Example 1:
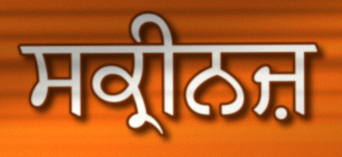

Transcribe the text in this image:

ਸਕ੍ਰੀਨਜ਼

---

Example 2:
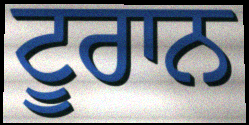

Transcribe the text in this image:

ਟੂਰਾਨ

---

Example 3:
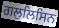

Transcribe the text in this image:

ਗਲੁਲਿਸਿਨ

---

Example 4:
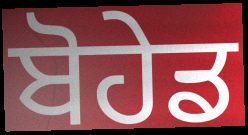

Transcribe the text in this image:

ਬੋਹੇਡ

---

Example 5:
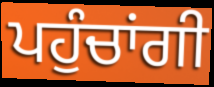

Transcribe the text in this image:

ਪਹੁੰਚਾਂਗੀ